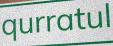
qurratul